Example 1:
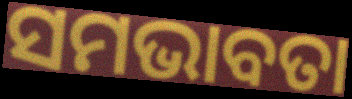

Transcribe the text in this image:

ସମଭାବତା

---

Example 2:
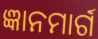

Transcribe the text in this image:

ଜ୍ଞାନମାର୍ଗ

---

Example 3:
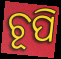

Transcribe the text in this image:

ଚୂପି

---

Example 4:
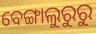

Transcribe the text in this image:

ବେଙ୍ଗାଲୁରୁରୁ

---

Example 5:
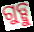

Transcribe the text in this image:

ଗୁଡ୍ଡୁ